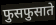
फुसफुसाते